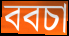
ববচা